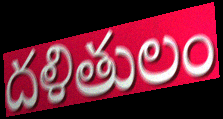
దళితులం